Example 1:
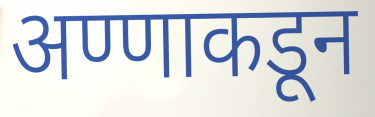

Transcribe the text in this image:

अण्णाकडून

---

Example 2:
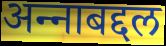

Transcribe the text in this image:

अन्‍नाबद्दल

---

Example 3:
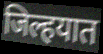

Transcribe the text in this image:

जिल्हयात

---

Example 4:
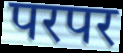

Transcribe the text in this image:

परपर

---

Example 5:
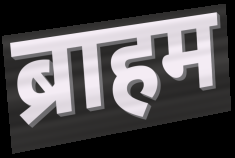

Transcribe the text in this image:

ब्राहम